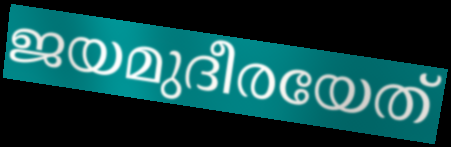
ജയമുദീരയേത്